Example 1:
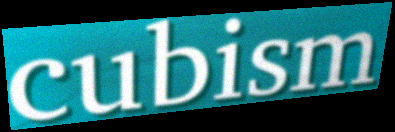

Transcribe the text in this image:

cubism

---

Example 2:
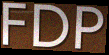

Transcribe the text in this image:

FDP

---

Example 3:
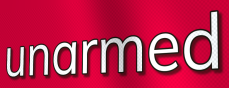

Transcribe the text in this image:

unarmed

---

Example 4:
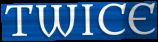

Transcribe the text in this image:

TWICE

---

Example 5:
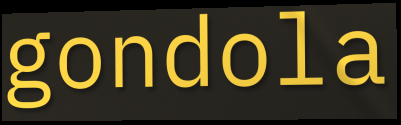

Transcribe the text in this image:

gondola